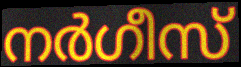
നർഗീസ്